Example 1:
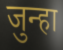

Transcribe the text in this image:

जुन्हा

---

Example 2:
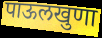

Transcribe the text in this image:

पाऊलखुणा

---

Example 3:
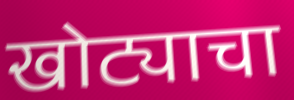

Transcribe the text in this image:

खोट्याचा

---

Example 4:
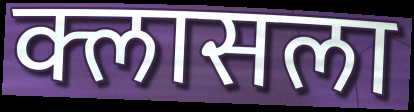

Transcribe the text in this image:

क्लासला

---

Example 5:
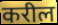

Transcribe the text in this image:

करील